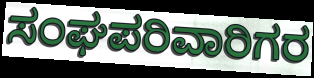
ಸಂಘಪರಿವಾರಿಗರ